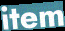
item